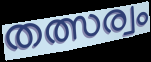
തത്സര്വം